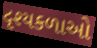
દૃશ્યકળાઓ